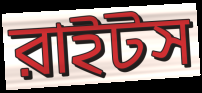
রাইটস